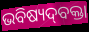
ଭବିଷ୍ୟଦ୍‌ବକ୍ତା